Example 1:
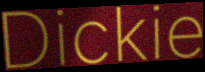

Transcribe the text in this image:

Dickie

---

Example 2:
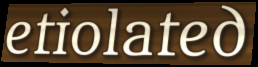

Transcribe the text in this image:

etiolated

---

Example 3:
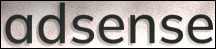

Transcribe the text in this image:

adsense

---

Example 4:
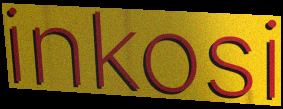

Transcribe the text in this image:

inkosi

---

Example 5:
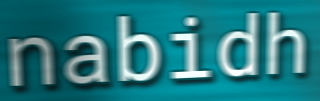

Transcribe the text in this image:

nabidh